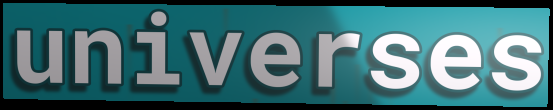
universes